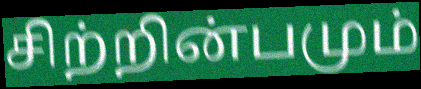
சிற்றின்பமும்